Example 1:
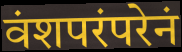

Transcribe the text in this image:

वंशपरंपरेनं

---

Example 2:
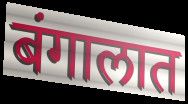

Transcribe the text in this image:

बंगालात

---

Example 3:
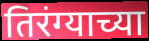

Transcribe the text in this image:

तिरंग्याच्या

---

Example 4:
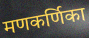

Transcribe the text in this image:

मणकर्णिका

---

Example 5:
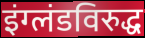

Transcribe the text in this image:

इंग्लंडविरुद्ध